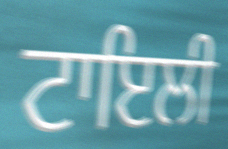
ਟਾਇਲੀ